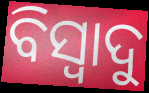
ବିସ୍ୱାଦୁ